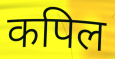
कपिल